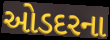
ઓડદરના